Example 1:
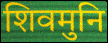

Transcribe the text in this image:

शिवमुनि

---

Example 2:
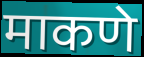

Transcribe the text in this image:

माकणे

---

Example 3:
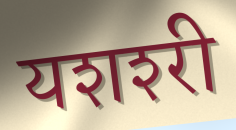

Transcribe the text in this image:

यशश्री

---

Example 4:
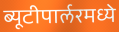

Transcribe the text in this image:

ब्यूटीपार्लरमध्ये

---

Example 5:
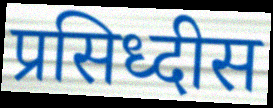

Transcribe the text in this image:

प्रसिध्दीस